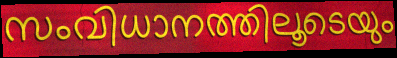
സംവിധാനത്തിലൂടെയും